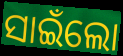
ସାଇଁଲୋ